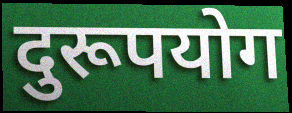
दुरूपयोग